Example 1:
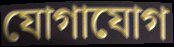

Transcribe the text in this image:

যোগাযোগ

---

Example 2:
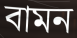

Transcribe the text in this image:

বামন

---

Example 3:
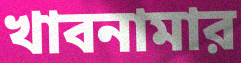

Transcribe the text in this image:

খাবনামার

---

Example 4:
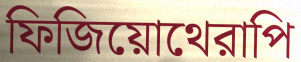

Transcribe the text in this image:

ফিজিয়োথেরাপি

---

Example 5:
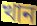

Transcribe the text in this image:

খান